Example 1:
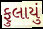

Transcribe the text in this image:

ફુલાયું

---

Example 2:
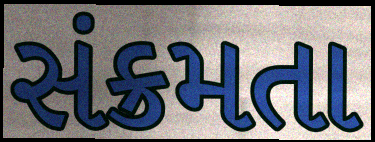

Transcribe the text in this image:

સંક્રમતા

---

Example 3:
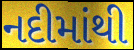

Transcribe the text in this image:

નદીમાંથી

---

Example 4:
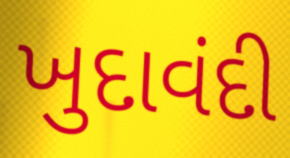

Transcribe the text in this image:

ખુદાવંદી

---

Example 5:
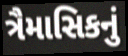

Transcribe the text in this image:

ત્રૈમાસિકનું